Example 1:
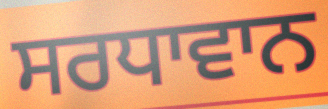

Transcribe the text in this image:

ਸਰਧਾਵਾਨ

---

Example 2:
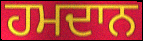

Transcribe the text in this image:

ਹਮਦਾਨ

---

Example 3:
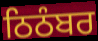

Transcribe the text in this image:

ਠਿਠੰਬਰ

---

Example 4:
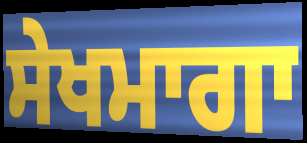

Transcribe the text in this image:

ਸੇਖਮਾਗਾ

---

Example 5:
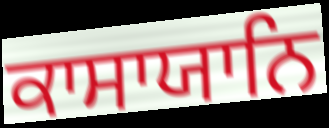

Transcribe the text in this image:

ਕਾਸਾਯਾਨਿ